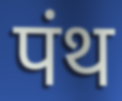
पंथ